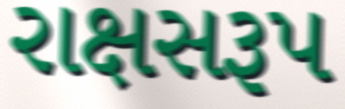
રાક્ષસરૂપ